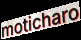
moticharo